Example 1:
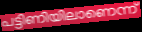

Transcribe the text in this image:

പട്ടിണിയിലാണെന്ന്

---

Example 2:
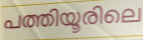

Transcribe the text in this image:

പത്തിയൂരിലെ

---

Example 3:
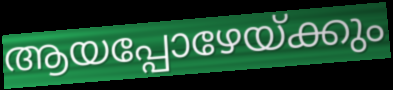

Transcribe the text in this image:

ആയപ്പോഴേയ്ക്കും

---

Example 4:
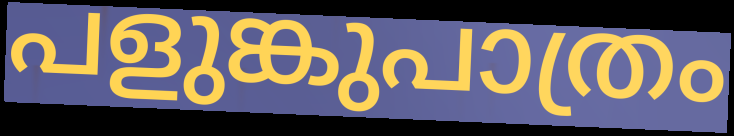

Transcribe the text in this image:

പളുങ്കുപാത്രം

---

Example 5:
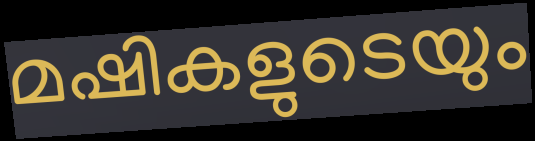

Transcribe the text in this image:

മഷികളുടെയും